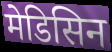
मेडिसिन